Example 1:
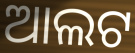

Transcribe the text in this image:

ଆଲଟ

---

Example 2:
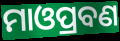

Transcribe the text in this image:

ମାଓପ୍ରବଣ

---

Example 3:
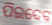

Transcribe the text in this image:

ପିଇଦେବ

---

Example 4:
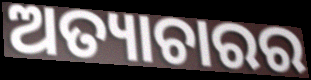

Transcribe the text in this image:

ଅତ୍ୟାଚାରର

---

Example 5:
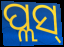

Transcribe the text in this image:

ପ୍ଲସ୍